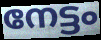
നേട്ടം